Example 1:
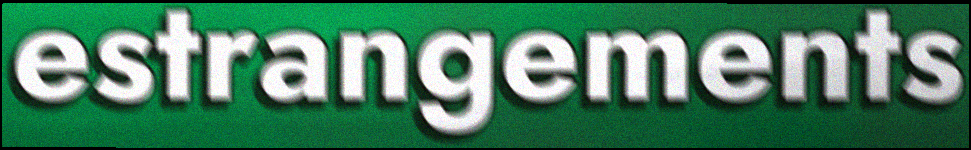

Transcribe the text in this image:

estrangements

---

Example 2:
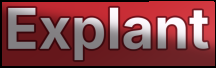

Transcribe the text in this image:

Explant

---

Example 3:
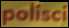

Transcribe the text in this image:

polisci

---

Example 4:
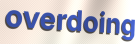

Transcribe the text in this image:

overdoing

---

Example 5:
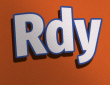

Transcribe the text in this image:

Rdy